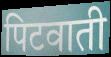
पिटवाती